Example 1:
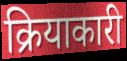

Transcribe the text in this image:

क्रियाकारी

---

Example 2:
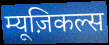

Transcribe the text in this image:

म्यूज़िकल्स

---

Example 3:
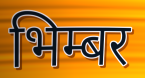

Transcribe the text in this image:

भिम्बर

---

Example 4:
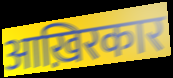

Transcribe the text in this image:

आख़िरकार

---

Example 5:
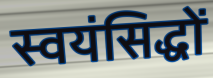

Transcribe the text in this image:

स्वयंसिद्धों